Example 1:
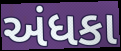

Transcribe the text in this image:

અંધકા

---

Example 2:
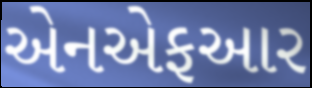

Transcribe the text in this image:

એનએફઆર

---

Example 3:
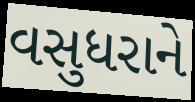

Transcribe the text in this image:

વસુધરાને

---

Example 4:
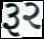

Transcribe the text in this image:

રૂર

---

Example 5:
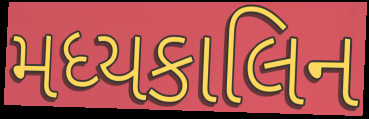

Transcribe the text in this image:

મધ્યકાલિન